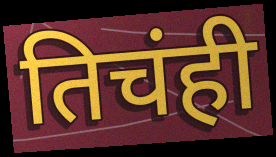
तिचंही